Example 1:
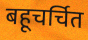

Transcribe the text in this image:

बहूचर्चित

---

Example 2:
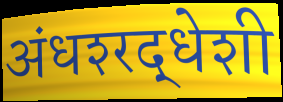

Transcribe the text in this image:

अंधश्रद्धेशी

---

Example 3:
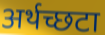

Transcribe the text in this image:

अर्थच्छटा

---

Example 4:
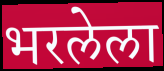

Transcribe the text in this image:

भरलेला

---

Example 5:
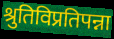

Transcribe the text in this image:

श्रुतिविप्रतिपन्ना